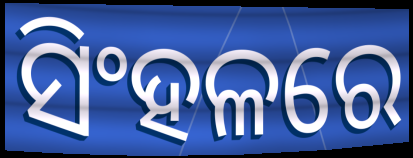
ସିଂହଳରେ